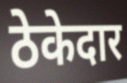
ठेकेदार